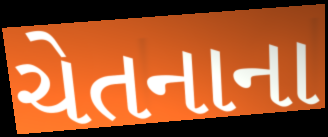
ચેતનાના